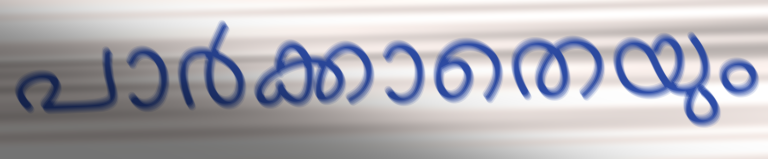
പാർക്കാതെയും